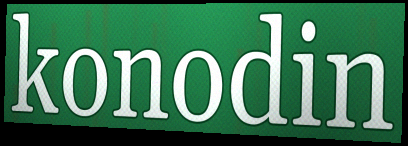
konodin